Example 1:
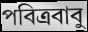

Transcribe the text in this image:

পবিত্রবাবু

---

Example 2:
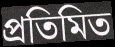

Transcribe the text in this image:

প্রতিমিত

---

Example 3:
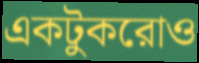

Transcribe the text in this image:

একটুকরোও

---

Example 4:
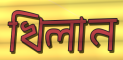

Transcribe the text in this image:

খিলান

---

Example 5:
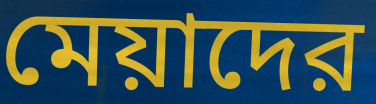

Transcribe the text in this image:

মেয়াদের